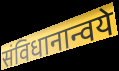
संविधानान्वये